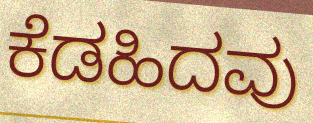
ಕೆಡಹಿದವು